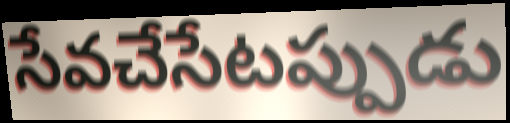
సేవచేసేటప్పుడు